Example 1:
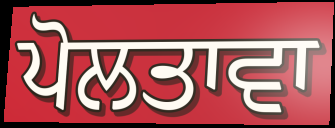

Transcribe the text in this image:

ਪੋਲਤਾਵਾ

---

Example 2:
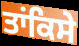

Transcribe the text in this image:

ਤਾਂਕਿਸੇ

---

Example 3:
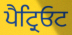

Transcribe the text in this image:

ਪੈਟ੍ਰਿਓਟ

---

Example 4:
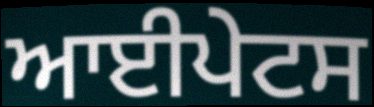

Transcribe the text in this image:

ਆਈਪੇਟਸ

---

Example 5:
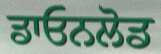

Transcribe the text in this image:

ਡਾਓਨਲੋਡ